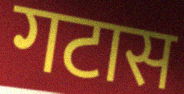
गटास